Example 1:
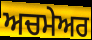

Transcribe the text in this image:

ਅਚਮੇਅਰ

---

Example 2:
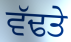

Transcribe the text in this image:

ਵੱਢਤੇ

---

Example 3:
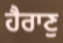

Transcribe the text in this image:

ਹੈਰਾਣੁ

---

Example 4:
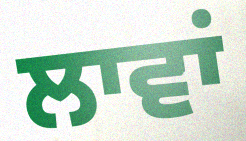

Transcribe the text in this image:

ਲਾਵਾਂ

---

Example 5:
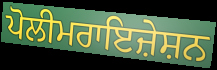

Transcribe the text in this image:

ਪੋਲੀਮਰਾਇਜ਼ੇਸ਼ਨ